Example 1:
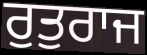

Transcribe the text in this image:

ਰੁਤੁਰਾਜ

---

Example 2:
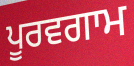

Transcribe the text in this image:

ਪੂਰਵਗਾਮ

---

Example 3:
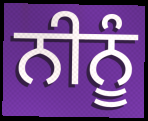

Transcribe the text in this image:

ਨੀਨੂੰ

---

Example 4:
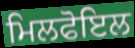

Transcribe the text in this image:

ਮਿਲਫੋਇਲ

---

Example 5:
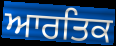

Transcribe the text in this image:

ਆਰਤਿਕ